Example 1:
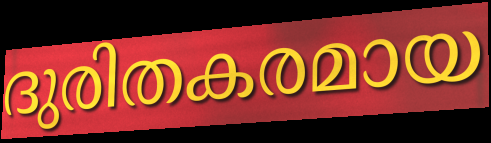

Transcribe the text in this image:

ദുരിതകരമായ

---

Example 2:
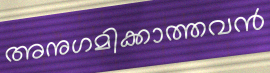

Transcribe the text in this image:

അനുഗമിക്കാത്തവൻ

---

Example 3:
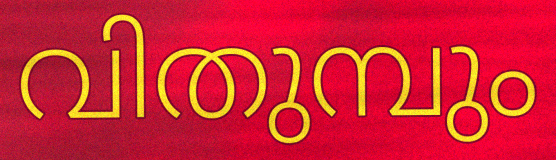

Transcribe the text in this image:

വിതുമ്പും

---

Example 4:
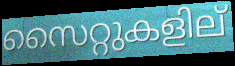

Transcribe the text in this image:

സൈറ്റുകളില്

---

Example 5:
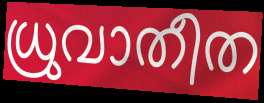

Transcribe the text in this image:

ധ്രുവാതീത